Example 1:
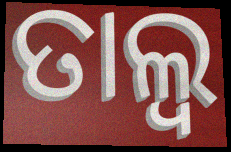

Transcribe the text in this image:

ତାଲ୍ୱ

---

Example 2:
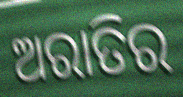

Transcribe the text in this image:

ଅରାତିର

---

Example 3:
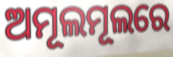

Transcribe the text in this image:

ଅମୂଲମୂଲରେ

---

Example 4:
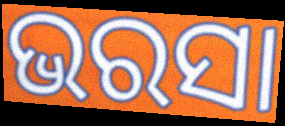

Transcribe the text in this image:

ଭରସା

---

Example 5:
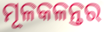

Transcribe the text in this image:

ମୂଳକଳନ୍ତର